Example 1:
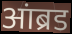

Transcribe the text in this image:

आंब्रड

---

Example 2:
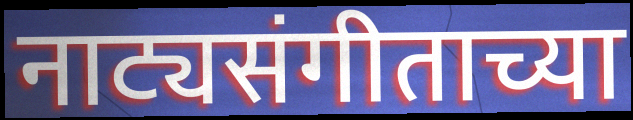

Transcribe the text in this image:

नाट्यसंगीताच्या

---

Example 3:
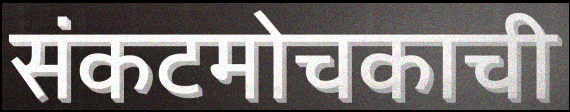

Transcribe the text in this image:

संकटमोचकाची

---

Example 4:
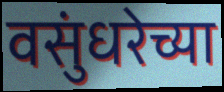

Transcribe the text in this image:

वसुंधरेच्या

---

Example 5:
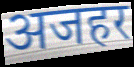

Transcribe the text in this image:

अजहर